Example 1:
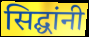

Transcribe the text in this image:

सिद्घांनी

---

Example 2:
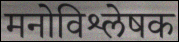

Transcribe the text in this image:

मनोविश्लेषक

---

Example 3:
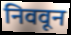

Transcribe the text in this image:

निववून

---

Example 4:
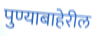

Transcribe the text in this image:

पुण्याबाहेरील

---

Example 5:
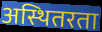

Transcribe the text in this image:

अस्थितरता